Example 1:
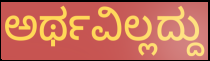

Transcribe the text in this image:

ಅರ್ಥವಿಲ್ಲದ್ದು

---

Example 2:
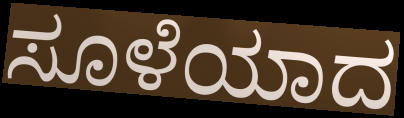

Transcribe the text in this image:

ಸೂಳೆಯಾದ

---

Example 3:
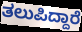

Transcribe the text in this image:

ತಲುಪಿದ್ದಾರೆ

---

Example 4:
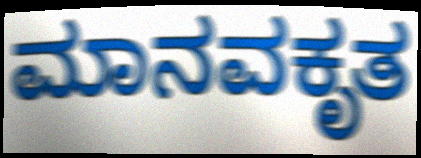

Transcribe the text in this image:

ಮಾನವಕೃತ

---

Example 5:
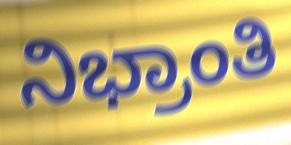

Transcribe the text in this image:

ನಿಭ್ರಾಂತಿ